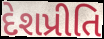
દેશપ્રીતિ